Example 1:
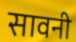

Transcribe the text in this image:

सावनी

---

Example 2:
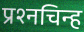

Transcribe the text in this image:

प्रश्नचिन्ह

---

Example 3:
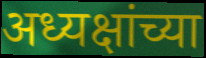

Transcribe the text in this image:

अध्यक्षांच्या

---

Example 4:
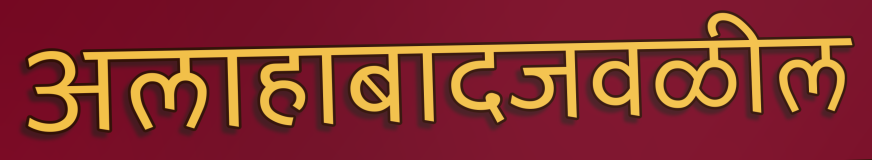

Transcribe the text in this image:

अलाहाबादजवळील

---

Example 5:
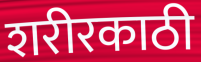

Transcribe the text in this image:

शरीरकाठी